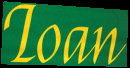
Ioan